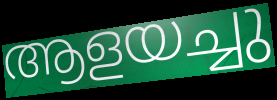
ആളയച്ചു